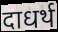
दाधर्थ